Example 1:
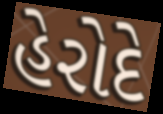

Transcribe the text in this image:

હેરોદે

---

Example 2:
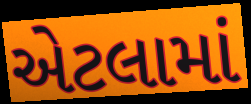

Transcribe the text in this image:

એટલામાં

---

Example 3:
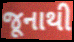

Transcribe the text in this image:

જૂનાથી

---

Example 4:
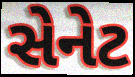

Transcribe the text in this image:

સેનેટ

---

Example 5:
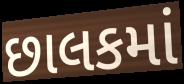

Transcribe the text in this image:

છાલકમાં